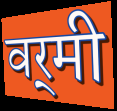
वर्मी